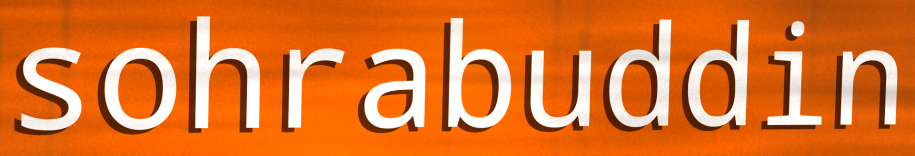
sohrabuddin